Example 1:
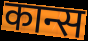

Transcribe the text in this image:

कान्‍स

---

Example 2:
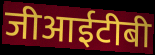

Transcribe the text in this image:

जीआईटीबी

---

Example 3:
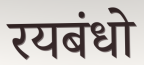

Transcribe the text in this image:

रयबंधो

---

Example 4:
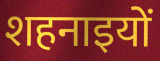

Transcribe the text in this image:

शहनाइयों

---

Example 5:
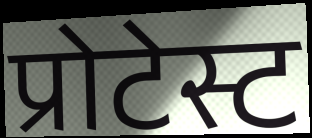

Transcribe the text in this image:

प्रोटेस्ट